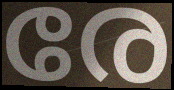
രേ